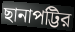
ছানাপট্টির